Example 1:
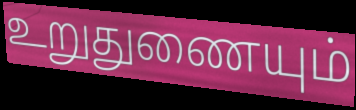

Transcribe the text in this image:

உறுதுணையும்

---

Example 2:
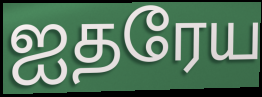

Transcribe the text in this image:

ஐதரேய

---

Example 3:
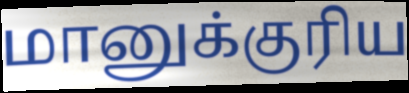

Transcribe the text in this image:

மானுக்குரிய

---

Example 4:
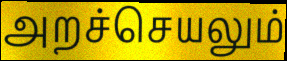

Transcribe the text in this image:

அறச்செயலும்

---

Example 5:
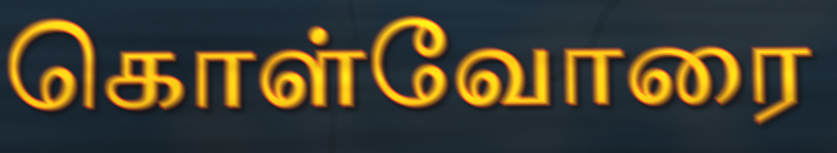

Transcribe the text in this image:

கொள்வோரை